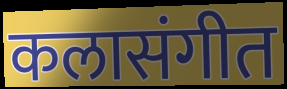
कलासंगीत